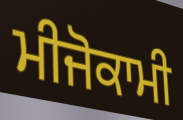
ਮੀਜੋਕਾਮੀ